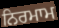
ਨਿਰਮਾਮ